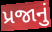
પ્રજાનું